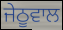
ਜੇਠੂਵਾਲ